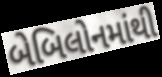
બેબિલોનમાંથી